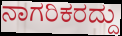
ನಾಗರಿಕರದ್ದು